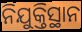
ନିଯୁକ୍ତିସ୍ଥାନ